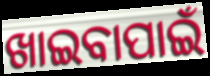
ଖାଇବାପାଇଁ